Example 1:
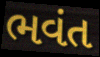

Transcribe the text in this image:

ભવંત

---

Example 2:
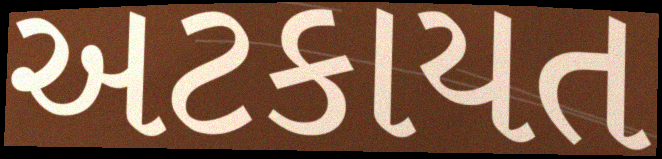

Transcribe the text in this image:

અટકાયત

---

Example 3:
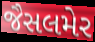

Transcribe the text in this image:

જૈસલમેર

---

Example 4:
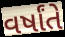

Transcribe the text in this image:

વર્ષાંતે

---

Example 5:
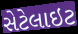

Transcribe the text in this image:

સેટેલાઇટ